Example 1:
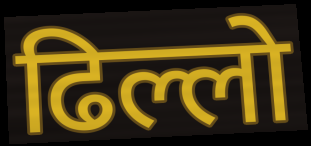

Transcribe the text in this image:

ढिल्लो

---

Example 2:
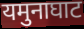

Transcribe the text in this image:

यमुनाघाट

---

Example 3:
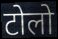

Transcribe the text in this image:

टोलो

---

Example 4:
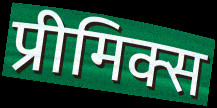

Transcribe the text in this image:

प्रीमिक्स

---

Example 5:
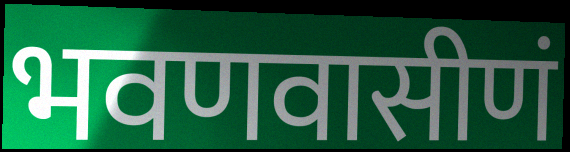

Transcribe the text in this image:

भवणवासीणं